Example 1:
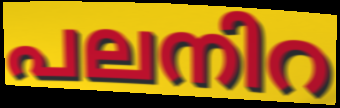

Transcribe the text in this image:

പലനിറ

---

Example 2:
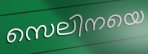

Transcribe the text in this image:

സെലിനയെ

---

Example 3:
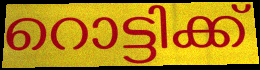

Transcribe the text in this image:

റൊട്ടിക്ക്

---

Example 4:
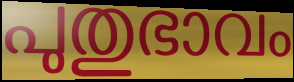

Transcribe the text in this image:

പുതുഭാവം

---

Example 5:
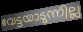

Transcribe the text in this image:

വേട്ടയാടുന്നില്ല